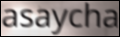
asaycha